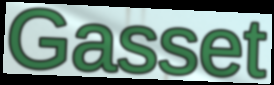
Gasset